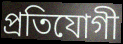
প্ৰতিযোগী